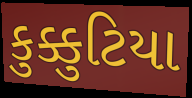
કુક્કુટિયા